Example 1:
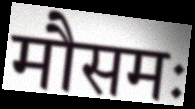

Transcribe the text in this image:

मौसमः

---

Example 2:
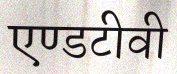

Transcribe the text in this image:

एण्डटीवी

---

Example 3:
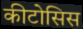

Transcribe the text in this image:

कीटोसिस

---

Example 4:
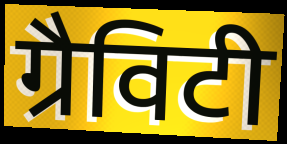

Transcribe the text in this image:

ग्रैविटी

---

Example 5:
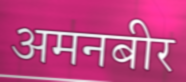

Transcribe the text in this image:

अमनबीर